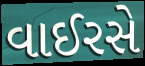
વાઈરસે